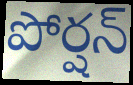
పోర్షన్